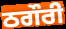
ਠਗੌਰੀ